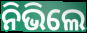
ନିଭିଲେ